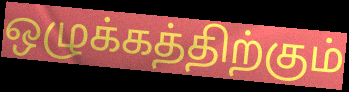
ஒழுக்கத்திற்கும்